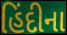
હિંદીના